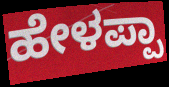
ಹೇಳಪ್ಪಾ